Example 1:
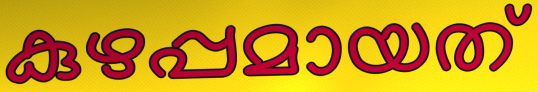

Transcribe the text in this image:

കുഴപ്പമായത്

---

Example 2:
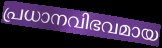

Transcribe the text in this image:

പ്രധാനവിഭവമായ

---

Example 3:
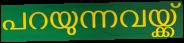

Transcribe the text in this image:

പറയുന്നവയ്ക്ക്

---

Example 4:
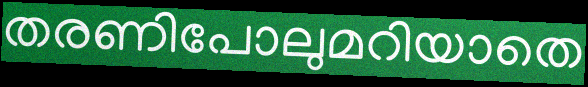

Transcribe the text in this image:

തരണിപോലുമറിയാതെ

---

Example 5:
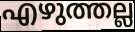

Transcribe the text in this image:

എഴുത്തല്ല